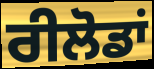
ਰੀਲੋਡਾਂ